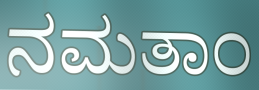
ನಮತಾಂ